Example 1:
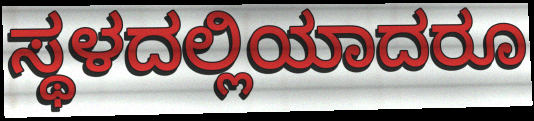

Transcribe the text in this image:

ಸ್ಥಳದಲ್ಲಿಯಾದರೂ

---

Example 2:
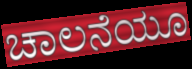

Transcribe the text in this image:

ಚಾಲನೆಯೂ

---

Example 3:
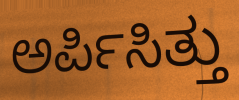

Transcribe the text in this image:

ಅರ್ಪಿಸಿತ್ತು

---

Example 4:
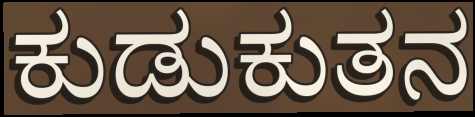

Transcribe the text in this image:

ಕುಡುಕುತನ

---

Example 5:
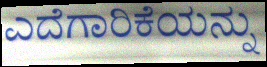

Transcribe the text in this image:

ಎದೆಗಾರಿಕೆಯನ್ನು